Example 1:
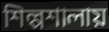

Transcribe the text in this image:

শিল্পশালায়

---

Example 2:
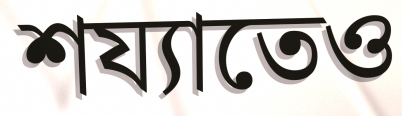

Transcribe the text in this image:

শয্যাতেও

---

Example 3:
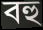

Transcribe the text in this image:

বহু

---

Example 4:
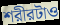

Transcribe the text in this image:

শরীরটাও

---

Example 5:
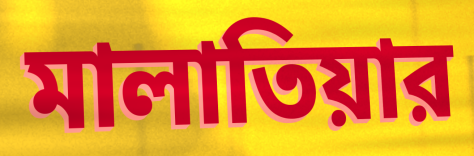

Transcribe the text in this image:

মালাতিয়ার